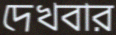
দেখবার